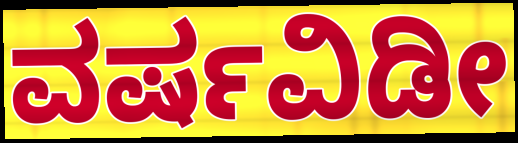
ವರ್ಷವಿಡೀ